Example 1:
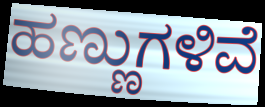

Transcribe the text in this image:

ಹಣ್ಣುಗಳಿವೆ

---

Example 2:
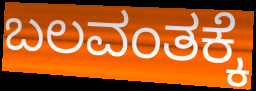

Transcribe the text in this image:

ಬಲವಂತಕ್ಕೆ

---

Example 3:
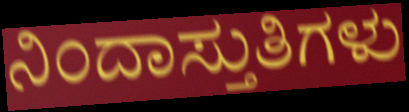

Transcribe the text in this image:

ನಿಂದಾಸ್ತುತಿಗಳು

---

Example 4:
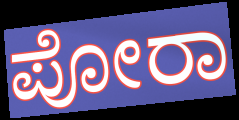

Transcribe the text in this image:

ಪೋರಾ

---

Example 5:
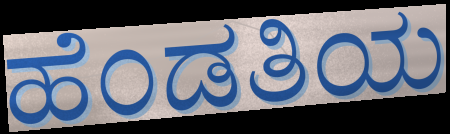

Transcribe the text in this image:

ಹೆಂಡತಿಯ